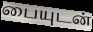
பையுடன்